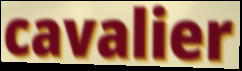
cavalier